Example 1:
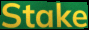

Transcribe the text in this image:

Stake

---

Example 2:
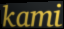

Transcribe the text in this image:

kami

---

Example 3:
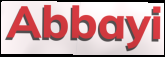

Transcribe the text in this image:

Abbayi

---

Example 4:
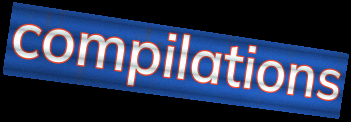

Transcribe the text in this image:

compilations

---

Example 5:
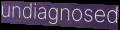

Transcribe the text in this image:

undiagnosed